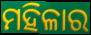
ମହିଳାର